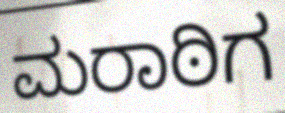
ಮರಾಠಿಗ